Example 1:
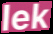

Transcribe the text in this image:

lek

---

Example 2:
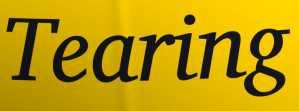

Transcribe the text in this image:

Tearing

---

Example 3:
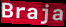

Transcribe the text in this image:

Braja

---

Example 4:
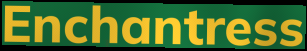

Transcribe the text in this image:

Enchantress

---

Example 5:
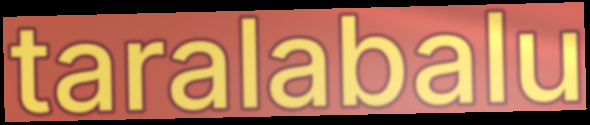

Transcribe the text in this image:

taralabalu